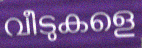
വീടുകളെ